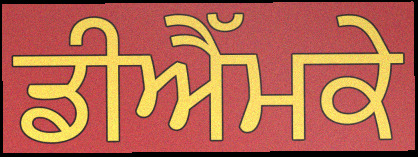
ਡੀਐੱਮਕੇ